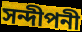
সন্দীপনী